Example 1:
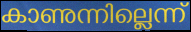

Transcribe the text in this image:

കാണുന്നില്ലെന്ന്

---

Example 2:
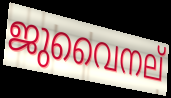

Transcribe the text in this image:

ജുവൈനല്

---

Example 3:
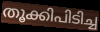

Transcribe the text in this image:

തൂക്കിപിടിച്ച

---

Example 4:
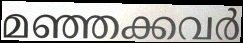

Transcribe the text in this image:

മഞ്ഞക്കവർ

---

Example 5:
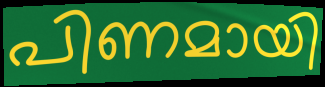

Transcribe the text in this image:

പിണമായി